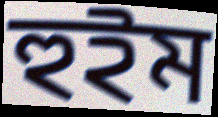
হুইম